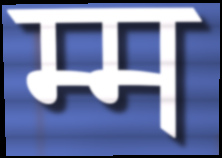
म्म